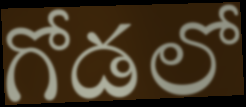
గోడలో